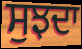
ਸੁਝਦਾ